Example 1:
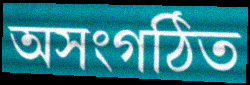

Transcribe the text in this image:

অসংগঠিত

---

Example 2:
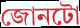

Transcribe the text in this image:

জোনটো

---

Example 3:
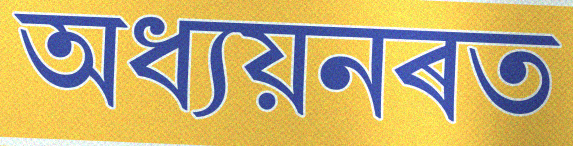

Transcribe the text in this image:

অধ্যয়নৰত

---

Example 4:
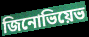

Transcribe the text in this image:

জিনোভিয়েভ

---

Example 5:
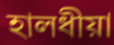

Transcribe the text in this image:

হালধীয়া